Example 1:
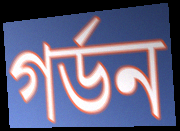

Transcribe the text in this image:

গর্ডন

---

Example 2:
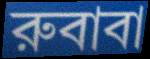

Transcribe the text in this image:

রুবাবা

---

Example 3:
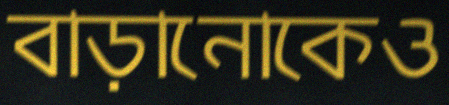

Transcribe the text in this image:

বাড়ানোকেও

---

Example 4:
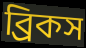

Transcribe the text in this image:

ব্রিকস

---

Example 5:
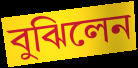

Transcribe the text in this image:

বুঝিলেন